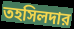
তহসিলদার